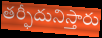
తర్ఫీదునిస్తారు